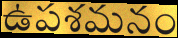
ఉపశమనం